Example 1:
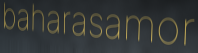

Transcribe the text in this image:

baharasamor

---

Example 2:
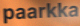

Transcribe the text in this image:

paarkka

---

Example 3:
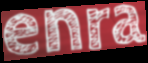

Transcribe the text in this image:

enra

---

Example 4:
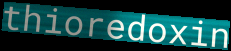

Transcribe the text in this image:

thioredoxin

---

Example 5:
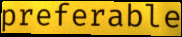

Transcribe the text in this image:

preferable